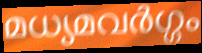
മധ്യമവർഗ്ഗം